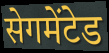
सेगमेंटेड